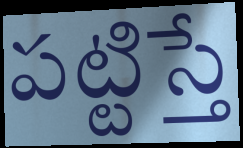
పట్టిస్తే